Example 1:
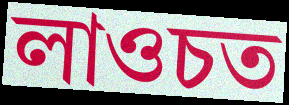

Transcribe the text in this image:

লাওচত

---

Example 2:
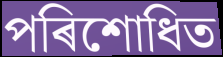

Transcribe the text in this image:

পৰিশোধিত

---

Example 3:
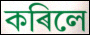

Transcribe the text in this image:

কৰিলে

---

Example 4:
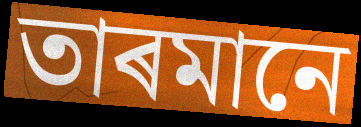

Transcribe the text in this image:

তাৰমানে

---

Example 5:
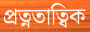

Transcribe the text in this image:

প্ৰত্নতাত্বিক